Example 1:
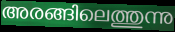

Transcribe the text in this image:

അരങ്ങിലെത്തുന്നു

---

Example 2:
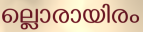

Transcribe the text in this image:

ല്ലൊരായിരം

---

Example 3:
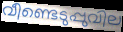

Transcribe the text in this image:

വീണ്ടെടുപ്പുവില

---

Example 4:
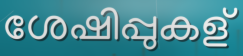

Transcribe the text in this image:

ശേഷിപ്പുകള്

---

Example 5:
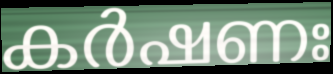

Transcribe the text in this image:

കർഷണഃ